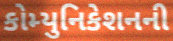
કોમ્યુનિકેશનની